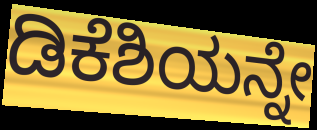
ಡಿಕೆಶಿಯನ್ನೇ